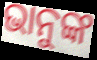
ଭାନୁଙ୍କ